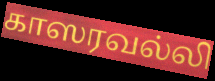
காஸரவல்லி